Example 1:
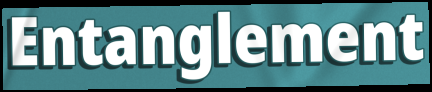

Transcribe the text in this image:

Entanglement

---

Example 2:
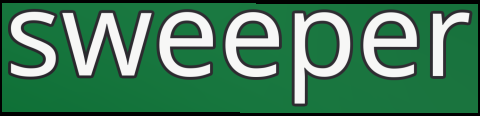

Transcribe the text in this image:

sweeper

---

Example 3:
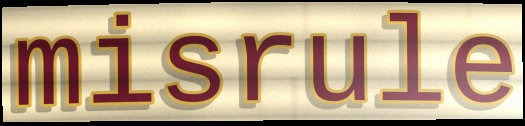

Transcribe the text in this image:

misrule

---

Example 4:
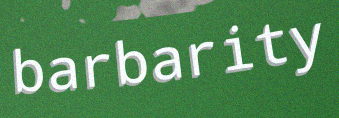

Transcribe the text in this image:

barbarity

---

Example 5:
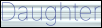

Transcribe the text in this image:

Daughter